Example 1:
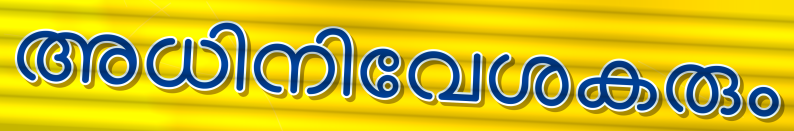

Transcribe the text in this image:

അധിനിവേശകരും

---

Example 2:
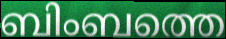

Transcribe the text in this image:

ബിംബത്തെ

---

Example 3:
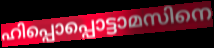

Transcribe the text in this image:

ഹിപ്പൊപ്പൊട്ടാമസിനെ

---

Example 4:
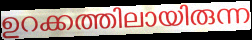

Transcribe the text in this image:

ഉറക്കത്തിലായിരുന്ന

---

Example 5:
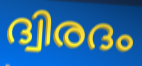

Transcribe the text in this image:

ദ്വിരദം